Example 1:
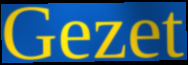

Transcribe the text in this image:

Gezet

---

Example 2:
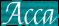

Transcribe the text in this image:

Acca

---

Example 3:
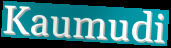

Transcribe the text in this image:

Kaumudi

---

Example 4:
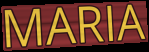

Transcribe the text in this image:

MARIA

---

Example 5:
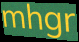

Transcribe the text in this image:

mhgr